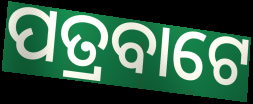
ପତ୍ରବାଟେ